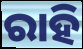
ରାହି